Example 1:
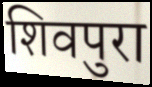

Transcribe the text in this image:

शिवपुरा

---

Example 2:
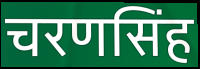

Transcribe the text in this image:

चरणसिंह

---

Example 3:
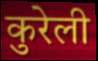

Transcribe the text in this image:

कुरेली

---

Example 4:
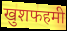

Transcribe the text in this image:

खुशफहमी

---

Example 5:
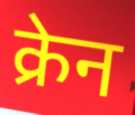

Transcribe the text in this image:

क्रेन